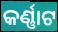
କର୍ଣ୍ଣାଟ